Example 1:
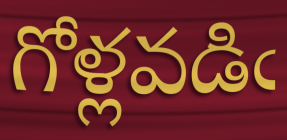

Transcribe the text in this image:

గోళ్లవడిఁ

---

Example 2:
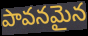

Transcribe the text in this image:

పావనమైన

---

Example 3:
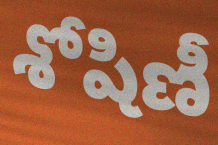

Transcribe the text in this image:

శోషిణీ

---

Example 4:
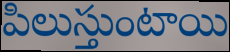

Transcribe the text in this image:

పిలుస్తుంటాయి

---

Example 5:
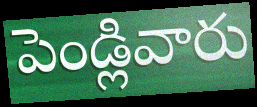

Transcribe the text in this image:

పెండ్లివారు